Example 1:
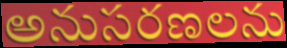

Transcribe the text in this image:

అనుసరణలను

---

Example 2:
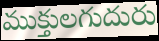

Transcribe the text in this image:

ముక్తులగుదురు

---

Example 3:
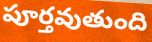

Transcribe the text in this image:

పూర్తవుతుంది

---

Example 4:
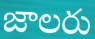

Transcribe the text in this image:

జాలరు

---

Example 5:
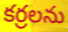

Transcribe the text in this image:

కర్రలను